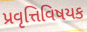
પ્રવૃત્તિવિષયક